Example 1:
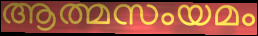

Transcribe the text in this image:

ആത്മസംയമം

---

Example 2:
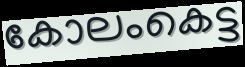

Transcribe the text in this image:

കോലംകെട്ട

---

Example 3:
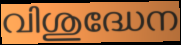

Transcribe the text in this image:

വിശുദ്ധേന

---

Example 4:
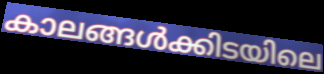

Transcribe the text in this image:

കാലങ്ങൾക്കിടയിലെ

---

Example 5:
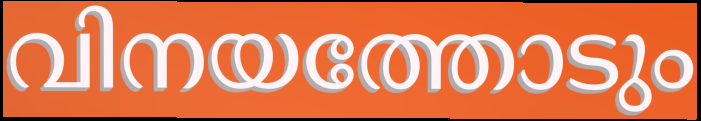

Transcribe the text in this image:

വിനയത്തോടും